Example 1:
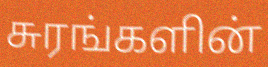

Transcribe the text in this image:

சுரங்களின்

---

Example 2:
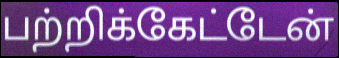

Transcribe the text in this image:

பற்றிக்கேட்டேன்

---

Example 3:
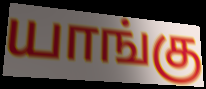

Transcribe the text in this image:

யாங்கு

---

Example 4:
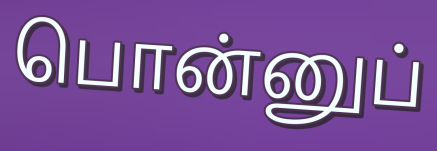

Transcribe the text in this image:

பொன்னுப்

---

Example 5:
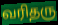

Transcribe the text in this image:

வரிதரு